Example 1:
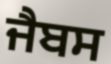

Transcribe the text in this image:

ਜੈਬਸ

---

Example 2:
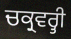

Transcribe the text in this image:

ਚਕ੍ਰਵਰ੍ਤੀ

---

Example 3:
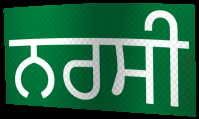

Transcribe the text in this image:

ਨਰਸੀ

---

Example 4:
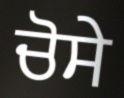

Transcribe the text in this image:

ਚੋਸੇ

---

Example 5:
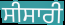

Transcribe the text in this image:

ਸੀਸਾਰੀ